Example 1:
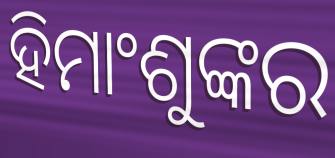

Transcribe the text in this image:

ହିମାଂଶୁଙ୍କର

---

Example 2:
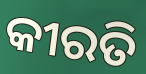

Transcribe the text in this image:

କୀରତି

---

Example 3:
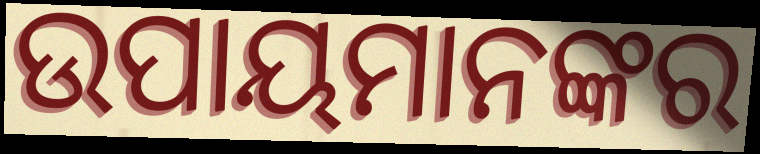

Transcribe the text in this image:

ଉପାୟମାନଙ୍କର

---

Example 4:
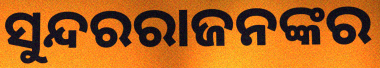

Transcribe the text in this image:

ସୁନ୍ଦରରାଜନଙ୍କର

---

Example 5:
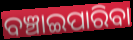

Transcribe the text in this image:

ବଞ୍ଚାଇପାରିବା